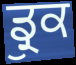
ਡ੍ਰੁਕ